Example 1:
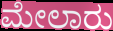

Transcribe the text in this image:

ಮೇಲಾರು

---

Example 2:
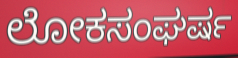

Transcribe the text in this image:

ಲೋಕಸಂಘರ್ಷ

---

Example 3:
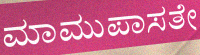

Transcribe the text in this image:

ಮಾಮುಪಾಸತೇ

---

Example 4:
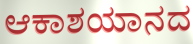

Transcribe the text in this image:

ಆಕಾಶಯಾನದ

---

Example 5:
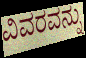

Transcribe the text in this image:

ವಿವರವನ್ನು